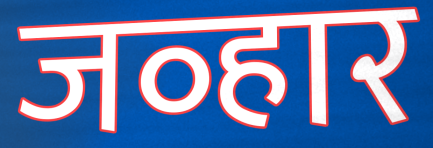
जव्हार